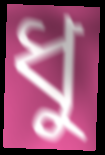
ধু